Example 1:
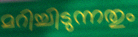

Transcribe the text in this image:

മറിച്ചിടുന്നതും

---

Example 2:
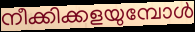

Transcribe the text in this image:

നീക്കിക്കളയുമ്പോൾ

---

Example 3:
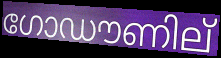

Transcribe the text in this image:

ഗോഡൗണില്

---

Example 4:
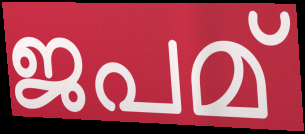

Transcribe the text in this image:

ജപമ്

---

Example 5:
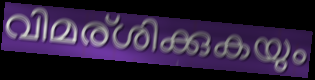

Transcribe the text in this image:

വിമര്ശിക്കുകയും